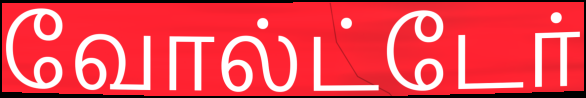
வோல்ட்டேர்